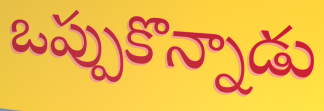
ఒప్పుకొన్నాడు